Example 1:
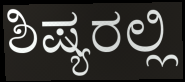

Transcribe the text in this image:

ಶಿಷ್ಯರಲ್ಲಿ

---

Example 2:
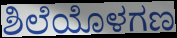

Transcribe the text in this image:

ಶಿಲೆಯೊಳಗಣ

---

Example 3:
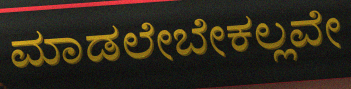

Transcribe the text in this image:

ಮಾಡಲೇಬೇಕಲ್ಲವೇ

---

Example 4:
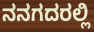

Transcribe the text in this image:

ನನಗದರಲ್ಲಿ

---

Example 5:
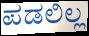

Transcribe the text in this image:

ಪಡಲಿಲ್ಲ